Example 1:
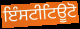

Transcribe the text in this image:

ਇੰਸਟੀਟਿਊਟੋ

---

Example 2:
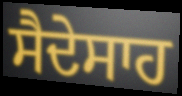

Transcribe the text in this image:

ਸੈਦੇਸਾਹ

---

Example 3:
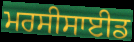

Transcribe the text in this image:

ਮਰਸੀਸਾਈਡ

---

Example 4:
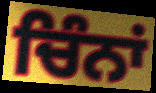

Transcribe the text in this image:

ਚਿੰਨਾਂ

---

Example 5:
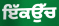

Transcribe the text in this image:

ਇੱਕਉੱਚ